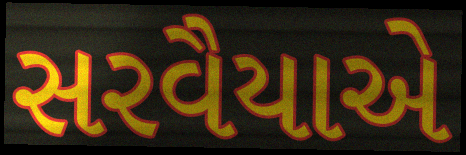
સરવૈયાએ